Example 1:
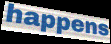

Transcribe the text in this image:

happens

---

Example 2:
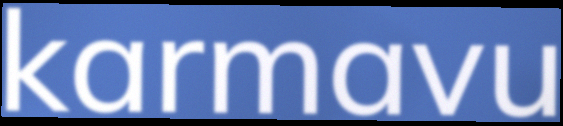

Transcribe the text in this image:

karmavu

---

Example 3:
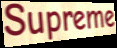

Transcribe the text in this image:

Supreme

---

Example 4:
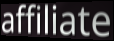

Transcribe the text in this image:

affiliate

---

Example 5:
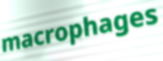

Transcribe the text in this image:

macrophages